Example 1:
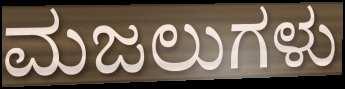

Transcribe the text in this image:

ಮಜಲುಗಳು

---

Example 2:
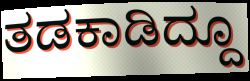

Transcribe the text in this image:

ತಡಕಾಡಿದ್ದೂ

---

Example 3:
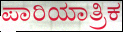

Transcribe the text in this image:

ಪಾರಿಯಾತ್ರಿಕ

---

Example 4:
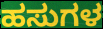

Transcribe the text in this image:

ಹಸುಗಳ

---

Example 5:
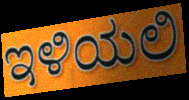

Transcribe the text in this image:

ಇಳಿಯಲಿ